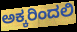
ಅಕ್ಕರಿಂದಲಿ